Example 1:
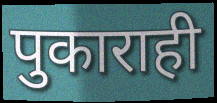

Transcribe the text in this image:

पुकाराही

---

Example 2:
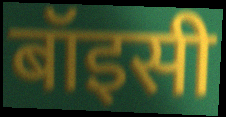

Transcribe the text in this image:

बॉइसी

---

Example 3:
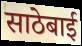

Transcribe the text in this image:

साठेबाई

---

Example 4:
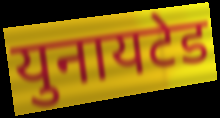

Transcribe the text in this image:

युनायटेड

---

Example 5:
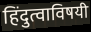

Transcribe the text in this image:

हिंदुत्वाविषयी